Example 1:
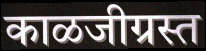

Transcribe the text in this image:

काळजीग्रस्त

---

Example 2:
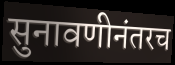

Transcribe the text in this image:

सुनावणीनंतरच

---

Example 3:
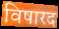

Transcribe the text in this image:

विषारद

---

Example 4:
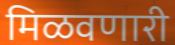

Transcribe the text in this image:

मिळवणारी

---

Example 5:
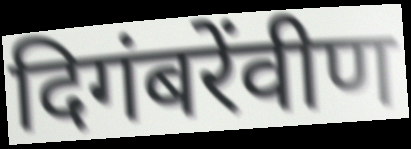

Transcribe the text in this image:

दिगंबरेंवीण